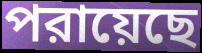
পরায়েছে